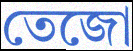
তেজো